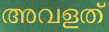
അവളത്